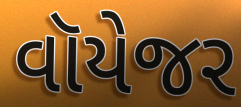
વૉયેજર